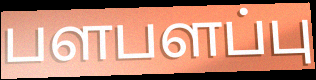
பளபளப்பு